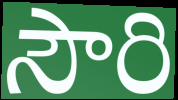
సౌరి